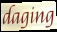
daging